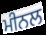
ਮੀਨਲ